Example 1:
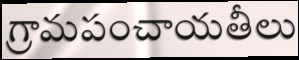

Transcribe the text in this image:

గ్రామపంచాయతీలు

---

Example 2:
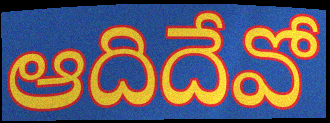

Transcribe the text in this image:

ఆదిదేవో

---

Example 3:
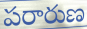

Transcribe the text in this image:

పరారుణ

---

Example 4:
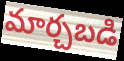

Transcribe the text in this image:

మార్చబడి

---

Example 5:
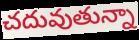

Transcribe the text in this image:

చదువుతున్నా